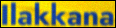
Ilakkana